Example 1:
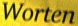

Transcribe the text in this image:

Worten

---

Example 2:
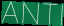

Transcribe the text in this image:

ANTI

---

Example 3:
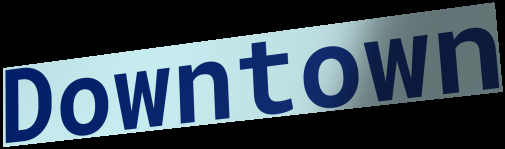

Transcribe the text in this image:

Downtown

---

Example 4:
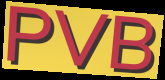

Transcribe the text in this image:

PVB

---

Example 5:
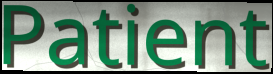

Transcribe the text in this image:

Patient